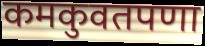
कमकुवतपणा